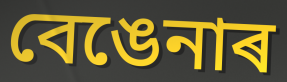
বেঙেনাৰ